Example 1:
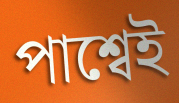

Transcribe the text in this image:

পাশ্বেই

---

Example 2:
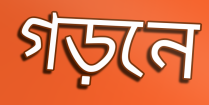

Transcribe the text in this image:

গড়নে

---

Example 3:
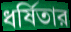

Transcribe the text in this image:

ধর্ষিতার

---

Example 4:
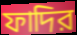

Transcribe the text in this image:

ফাদির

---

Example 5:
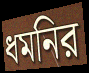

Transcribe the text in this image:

ধমনির